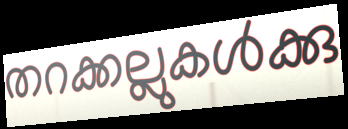
തറക്കല്ലുകൾക്കു